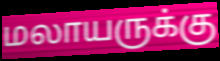
மலாயருக்கு